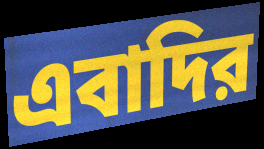
এবাদির